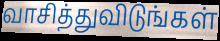
வாசித்துவிடுங்கள்